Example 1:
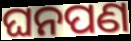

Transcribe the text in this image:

ଘନପଣ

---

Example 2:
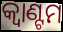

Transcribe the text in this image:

କ୍ୱାଣ୍ଟମ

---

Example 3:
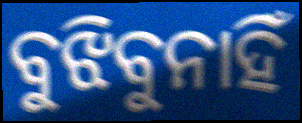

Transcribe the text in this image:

ବୁଝିବୁନାହିଁ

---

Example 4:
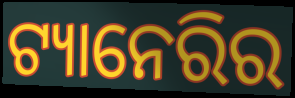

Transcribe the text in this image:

ଟ୍ୟାନେରିର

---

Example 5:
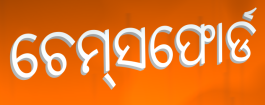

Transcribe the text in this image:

ଚେମ୍‌ସଫୋର୍ଡ